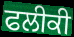
ਫਲੀਕੀ